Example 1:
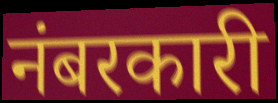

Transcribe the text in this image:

नंबरकारी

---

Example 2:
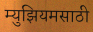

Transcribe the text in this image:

म्युझियमसाठी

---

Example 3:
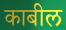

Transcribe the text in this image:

काबील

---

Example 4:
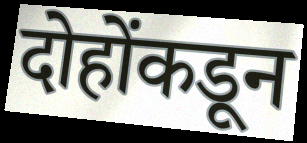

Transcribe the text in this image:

दोहोंकडून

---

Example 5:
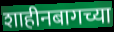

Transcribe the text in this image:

शाहीनबागच्या